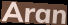
Aran